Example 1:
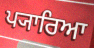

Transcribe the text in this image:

ਪ੍ਯਾਰਿਆ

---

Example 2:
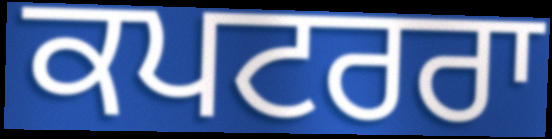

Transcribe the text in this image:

ਕਪਟਰਰਾ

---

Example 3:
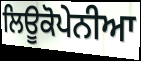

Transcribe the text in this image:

ਲਿਊਕੋਪੇਨੀਆ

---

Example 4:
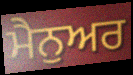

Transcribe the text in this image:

ਮੈਨੁਅਰ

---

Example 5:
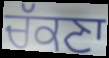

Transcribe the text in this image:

ਚੱਕਣਾ